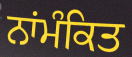
ਨਾਂਮੰਕਿਤ